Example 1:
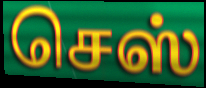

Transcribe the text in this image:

செஸ்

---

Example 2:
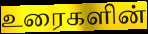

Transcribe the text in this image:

உரைகளின்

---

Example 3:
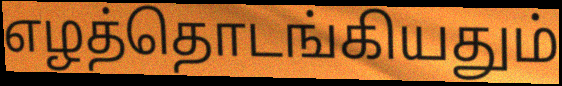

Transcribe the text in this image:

எழத்தொடங்கியதும்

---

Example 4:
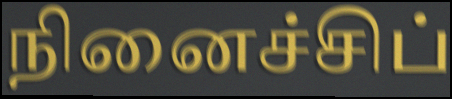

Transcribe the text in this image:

நினைச்சிப்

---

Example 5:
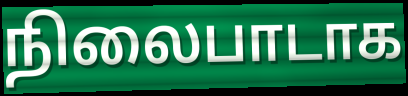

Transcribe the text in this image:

நிலைபாடாக